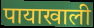
पायाखाली